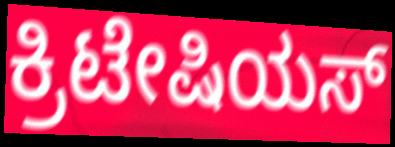
ಕ್ರಿಟೇಷಿಯಸ್